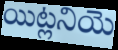
యిట్లనియె